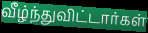
வீழ்ந்துவிட்டார்கள்